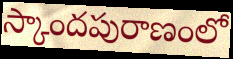
స్కాందపురాణంలో